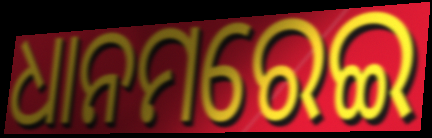
ଧାନମରେଇ